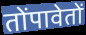
तोंपावेतों